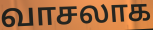
வாசலாக